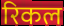
रिकल